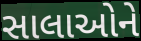
સાલાઓને